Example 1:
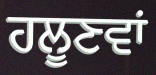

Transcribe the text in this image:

ਹਲੂਣਵਾਂ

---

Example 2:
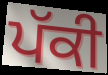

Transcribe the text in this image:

ਪੱਕੀ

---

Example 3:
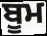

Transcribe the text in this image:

ਬੂਮ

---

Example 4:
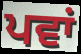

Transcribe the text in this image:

ਪਵਾਂ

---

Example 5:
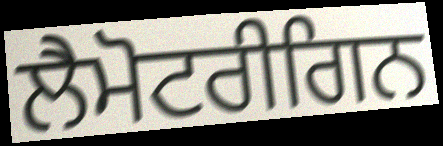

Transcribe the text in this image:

ਲੈਮੋਟਰੀਗਿਨ